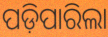
ପଡ଼ିପାରିଲା